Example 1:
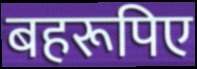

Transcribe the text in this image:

बहरूपिए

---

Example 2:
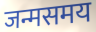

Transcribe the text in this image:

जन्मसमय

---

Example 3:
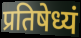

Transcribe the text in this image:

प्रतिषेध्यं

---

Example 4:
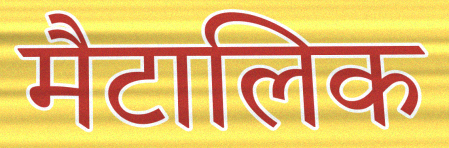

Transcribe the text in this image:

मैटालिक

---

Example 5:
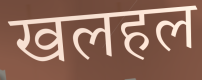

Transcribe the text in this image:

खलहल